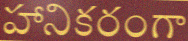
హానికరంగా